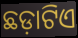
ଛଡ଼ାଟିଏ